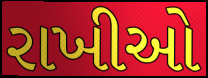
રાખીઓ